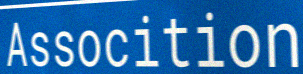
Assocition